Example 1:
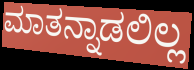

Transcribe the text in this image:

ಮಾತನ್ನಾಡಲಿಲ್ಲ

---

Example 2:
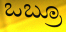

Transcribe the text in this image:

ಒಬ್ರೂ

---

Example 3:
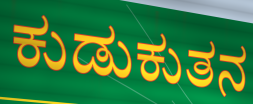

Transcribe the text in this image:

ಕುಡುಕುತನ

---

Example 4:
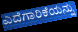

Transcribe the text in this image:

ಎದೆಗಾರಿಕೆಯನ್ನು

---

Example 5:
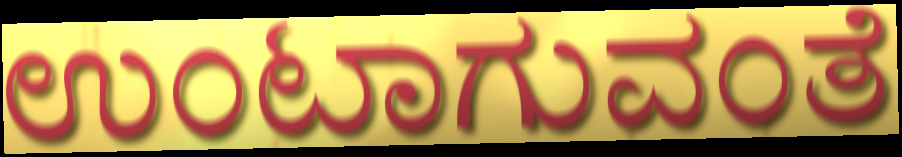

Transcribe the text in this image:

ಉಂಟಾಗುವಂತೆ